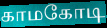
காமகோடி